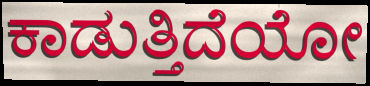
ಕಾಡುತ್ತಿದೆಯೋ